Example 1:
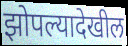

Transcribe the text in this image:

झोपल्यादेखील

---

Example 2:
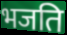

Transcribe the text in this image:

भजति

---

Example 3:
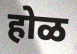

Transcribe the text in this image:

होळ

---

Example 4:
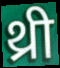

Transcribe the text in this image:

थ्री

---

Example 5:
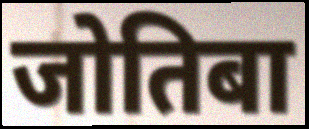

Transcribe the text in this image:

जोतिबा